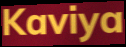
Kaviya